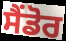
ਸੈਂਡੋਰ